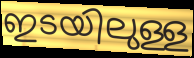
ഇടയിലുള്ള